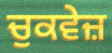
ਚੁਕਵੇਜ਼